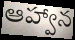
ఆహ్వాన